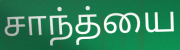
சாந்த்யை